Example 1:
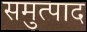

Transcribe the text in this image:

समुत्पाद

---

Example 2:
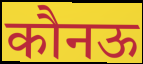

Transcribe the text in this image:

कौनऊ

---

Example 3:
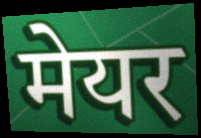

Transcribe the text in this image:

मेयर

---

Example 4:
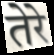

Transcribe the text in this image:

तेरे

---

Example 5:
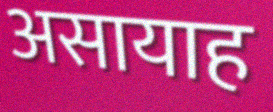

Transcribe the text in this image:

असायाह